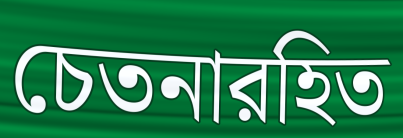
চেতনারহিত